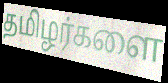
தமிழர்களை